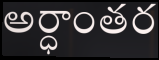
అర్ధాంతర